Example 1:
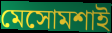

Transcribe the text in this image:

মেসোমশাই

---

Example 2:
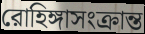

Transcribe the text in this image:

রোহিঙ্গাসংক্রান্ত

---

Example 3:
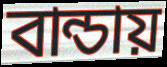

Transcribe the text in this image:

বান্ডায়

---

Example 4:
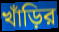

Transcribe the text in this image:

খাঁড়ির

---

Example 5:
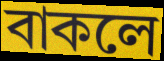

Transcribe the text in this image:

বাকলে